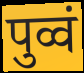
पुव्वं